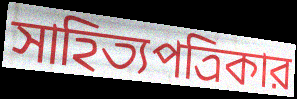
সাহিত্যপত্রিকার